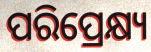
ପରିପ୍ରେକ୍ଷ୍ୟ